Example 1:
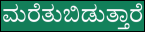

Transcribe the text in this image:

ಮರೆತುಬಿಡುತ್ತಾರೆ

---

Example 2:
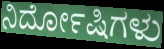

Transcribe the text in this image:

ನಿರ್ದೋಷಿಗಳು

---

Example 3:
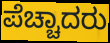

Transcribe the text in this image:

ಪೆಚ್ಚಾದರು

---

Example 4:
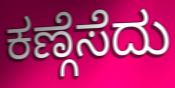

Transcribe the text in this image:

ಕಣ್ಗೆಸೆದು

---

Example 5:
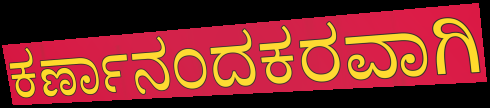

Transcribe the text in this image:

ಕರ್ಣಾನಂದಕರವಾಗಿ